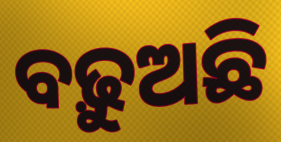
ବଢ଼ୁଅଛି